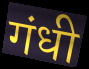
गंधी